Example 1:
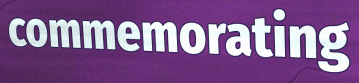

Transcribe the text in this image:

commemorating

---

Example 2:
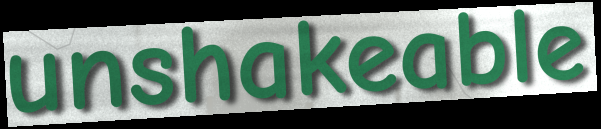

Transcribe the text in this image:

unshakeable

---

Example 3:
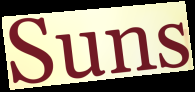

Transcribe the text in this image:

Suns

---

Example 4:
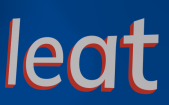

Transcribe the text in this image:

leat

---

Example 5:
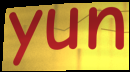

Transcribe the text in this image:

yun